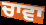
ਚਾਵਾ